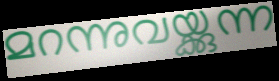
മറന്നുവയ്ക്കുന്ന